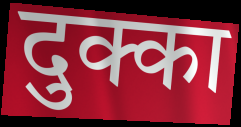
दुक्का